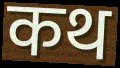
कथ